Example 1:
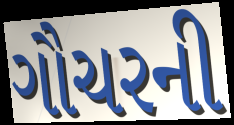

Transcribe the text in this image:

ગૌચરની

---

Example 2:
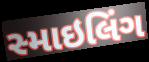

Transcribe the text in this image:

સ્માઇલિંગ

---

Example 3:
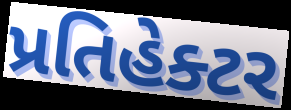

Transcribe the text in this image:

પ્રતિહેક્ટર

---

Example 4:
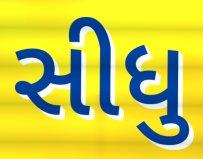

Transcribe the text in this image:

સીધુ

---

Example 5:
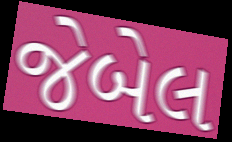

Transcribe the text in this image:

જેબેલ